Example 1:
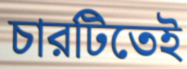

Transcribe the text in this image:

চারটিতেই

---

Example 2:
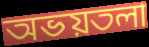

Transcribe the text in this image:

অভয়তলা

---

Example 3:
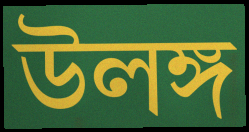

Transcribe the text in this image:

উলঙ্গ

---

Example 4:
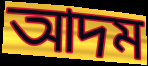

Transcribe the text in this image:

আদম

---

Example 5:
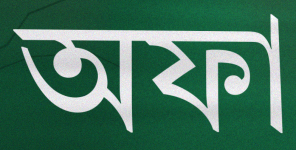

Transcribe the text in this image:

অফা